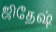
ஜிதேஷ்